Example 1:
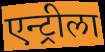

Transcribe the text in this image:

एन्ट्रीला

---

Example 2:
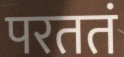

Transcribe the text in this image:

परततं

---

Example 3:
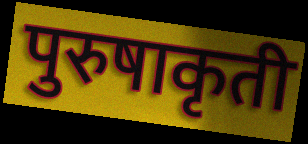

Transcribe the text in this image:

पुरुषाकृती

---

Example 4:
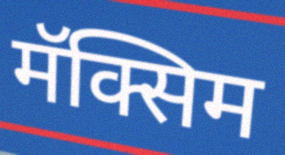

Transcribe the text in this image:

मॅक्सिम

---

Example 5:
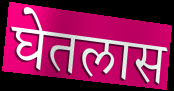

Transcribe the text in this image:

घेतलास